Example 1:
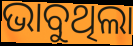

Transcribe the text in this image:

ଭାବୁଥିଲା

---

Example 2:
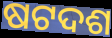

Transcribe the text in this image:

ଷଟଦଶ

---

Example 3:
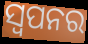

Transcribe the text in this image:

ସ୍ଵପନର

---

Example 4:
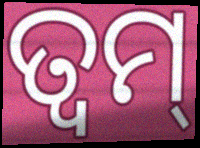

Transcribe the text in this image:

ତ୍ୱମ୍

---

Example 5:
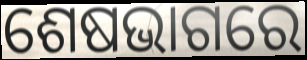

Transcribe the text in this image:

ଶେଷଭାଗରେ